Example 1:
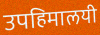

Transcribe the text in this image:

उपहिमालयी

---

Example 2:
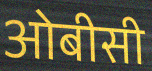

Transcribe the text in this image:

ओबीसी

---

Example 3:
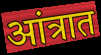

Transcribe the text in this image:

आंत्रात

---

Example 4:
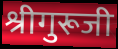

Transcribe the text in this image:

श्रीगुरूजी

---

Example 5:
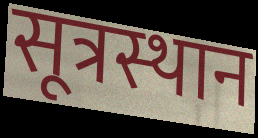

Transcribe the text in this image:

सूत्रस्थान